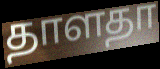
தாளதா